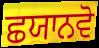
ਛਯਾਨਵੋ